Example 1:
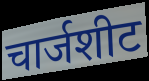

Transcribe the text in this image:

चार्जशीट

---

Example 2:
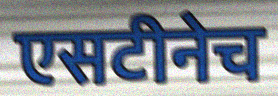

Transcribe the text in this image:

एसटीनेच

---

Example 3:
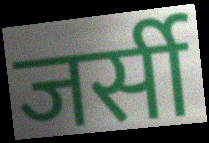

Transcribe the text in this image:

जर्सी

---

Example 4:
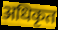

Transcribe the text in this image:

अधिकृत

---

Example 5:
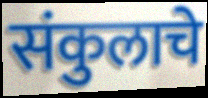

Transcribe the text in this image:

संकुलाचे